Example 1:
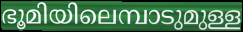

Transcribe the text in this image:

ഭൂമിയിലെമ്പാടുമുള്ള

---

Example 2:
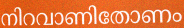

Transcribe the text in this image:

നിറവാണിതോണം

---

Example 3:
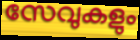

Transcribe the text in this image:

സേവുകളും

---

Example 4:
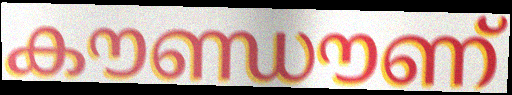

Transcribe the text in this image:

കൗണ്ഡൗണ്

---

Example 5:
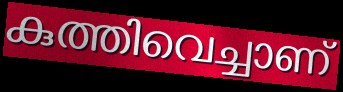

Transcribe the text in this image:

കുത്തിവെച്ചാണ്